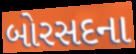
બોરસદના